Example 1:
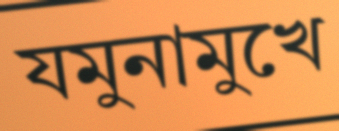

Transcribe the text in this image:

যমুনামুখে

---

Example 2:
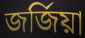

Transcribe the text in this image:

জর্জিয়া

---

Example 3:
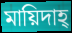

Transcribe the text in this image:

মায়িদাহ্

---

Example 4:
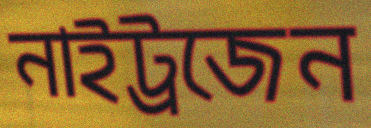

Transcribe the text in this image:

নাইট্রজেন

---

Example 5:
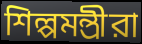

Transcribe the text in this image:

শিল্পমন্ত্রীরা